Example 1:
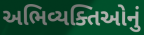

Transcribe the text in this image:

અભિવ્યક્તિઓનું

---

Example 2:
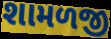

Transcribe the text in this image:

શામળજી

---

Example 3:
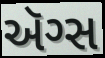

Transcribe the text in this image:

ઍગ્સ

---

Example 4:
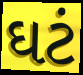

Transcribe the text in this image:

ઘટં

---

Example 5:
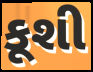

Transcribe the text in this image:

કૂશી